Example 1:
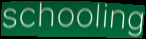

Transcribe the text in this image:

schooling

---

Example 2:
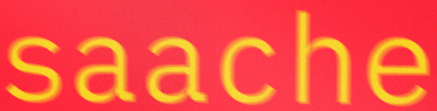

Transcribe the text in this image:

saache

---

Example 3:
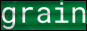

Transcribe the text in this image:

grain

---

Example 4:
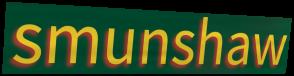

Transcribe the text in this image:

smunshaw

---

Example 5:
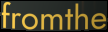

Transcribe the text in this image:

fromthe